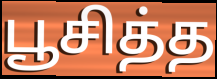
பூசித்த